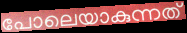
പോലെയാകുന്നത്